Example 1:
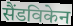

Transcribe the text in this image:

सैंडविकेन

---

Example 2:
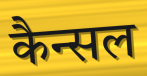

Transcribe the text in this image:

कैन्सल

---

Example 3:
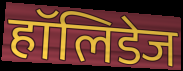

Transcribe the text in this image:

हॉलिडेज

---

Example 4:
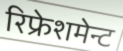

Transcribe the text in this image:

रिफ्रेशमेन्ट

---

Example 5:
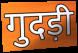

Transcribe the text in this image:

गुदड़ी